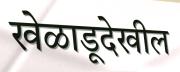
खेळाडूदेखील